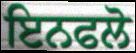
ਇਨਫਲੋ